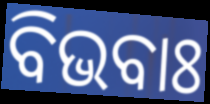
ବିଭବାଃ